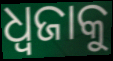
ଧ୍ୱଜାକୁ